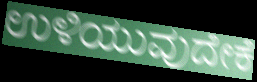
ಉಳಿಯುವುದೇಕೆ